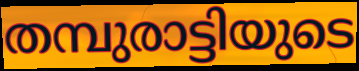
തമ്പുരാട്ടിയുടെ